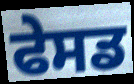
ਫੇਸਡ